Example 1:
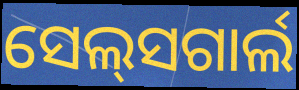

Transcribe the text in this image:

ସେଲ୍‍ସଗାର୍ଲ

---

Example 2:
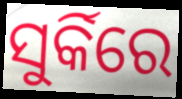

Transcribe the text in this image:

ସୁର୍କିରେ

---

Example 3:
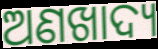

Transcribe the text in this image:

ଅଣଖାଦ୍ୟ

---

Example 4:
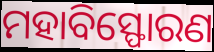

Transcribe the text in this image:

ମହାବିସ୍ଫୋରଣ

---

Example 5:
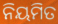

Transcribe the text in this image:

ନିୟମିତ